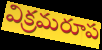
విక్రమరూప